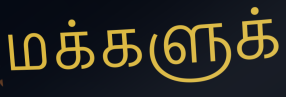
மக்களுக்